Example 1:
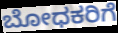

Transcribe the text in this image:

ಬೋಧಕರಿಗೆ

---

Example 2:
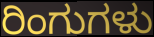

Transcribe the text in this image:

ರಿಂಗುಗಳು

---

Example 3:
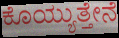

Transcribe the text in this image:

ಕೊಯ್ಯುತ್ತೇನೆ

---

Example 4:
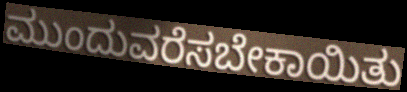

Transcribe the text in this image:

ಮುಂದುವರೆಸಬೇಕಾಯಿತು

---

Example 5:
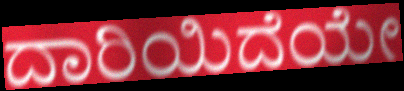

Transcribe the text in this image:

ದಾರಿಯಿದೆಯೇ